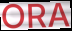
ORA